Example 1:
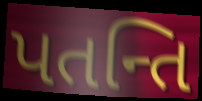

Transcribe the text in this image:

પતન્તિ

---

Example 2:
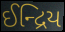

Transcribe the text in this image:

ઈન્દ્રિય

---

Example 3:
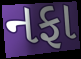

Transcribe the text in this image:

નફા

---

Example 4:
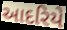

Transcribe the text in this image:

આદરિયે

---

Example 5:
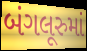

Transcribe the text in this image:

બંગલૂરુમાં